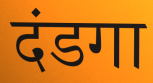
दंडगा